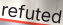
refuted